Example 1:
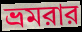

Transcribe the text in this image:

ভ্রমরার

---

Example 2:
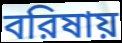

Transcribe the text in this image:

বরিষায়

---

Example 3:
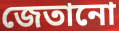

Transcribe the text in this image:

জেতানো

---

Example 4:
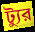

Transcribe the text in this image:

ট্যুর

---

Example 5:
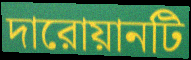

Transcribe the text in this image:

দারোয়ানটি